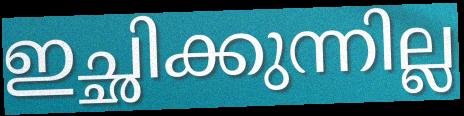
ഇച്ഛിക്കുന്നില്ല